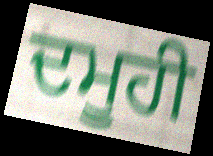
ਦਮੂਹੀ